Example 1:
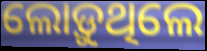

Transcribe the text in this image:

ଲୋଡ଼ୁଥିଲେ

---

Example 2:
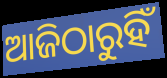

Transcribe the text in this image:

ଆଜିଠାରୁହିଁ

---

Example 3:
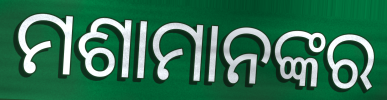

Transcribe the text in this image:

ମଶାମାନଙ୍କର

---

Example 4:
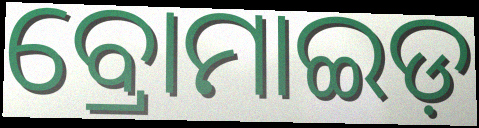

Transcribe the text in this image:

ବ୍ରୋମାଇଡ଼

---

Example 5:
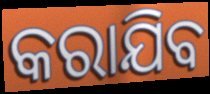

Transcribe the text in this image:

କରାଯିବ